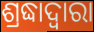
ଶ୍ରଦ୍ଧାଦ୍ୱାରା